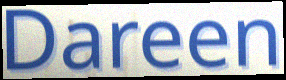
Dareen